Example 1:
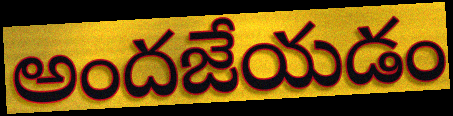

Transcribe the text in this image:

అందజేయడం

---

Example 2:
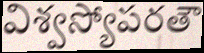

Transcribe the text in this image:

విశ్వస్యోపరతౌ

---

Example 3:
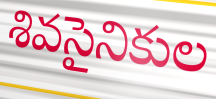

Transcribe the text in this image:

శివసైనికుల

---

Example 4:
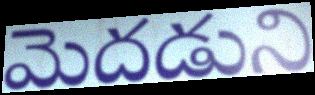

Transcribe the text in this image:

మెదడుని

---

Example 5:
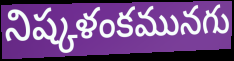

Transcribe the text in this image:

నిష్కళంకమునగు